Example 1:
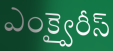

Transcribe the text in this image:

ఎంక్వైరీస్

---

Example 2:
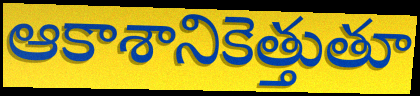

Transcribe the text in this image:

ఆకాశానికెత్తుతూ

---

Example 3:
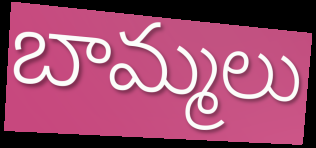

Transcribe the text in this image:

బామ్మలు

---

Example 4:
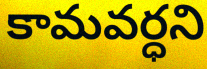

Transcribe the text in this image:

కామవర్ధని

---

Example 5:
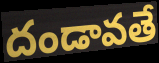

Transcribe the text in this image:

దండావతే